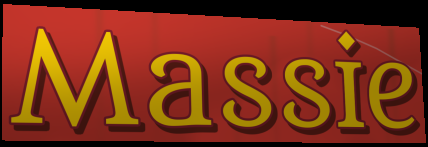
Massie